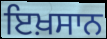
ਇਖ਼ਸਾਨ